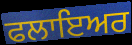
ਫਲਾਇਅਰ